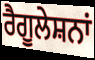
ਰੈਗੂਲੇਸ਼ਨਾਂ